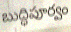
బుద్ధిపూర్వం